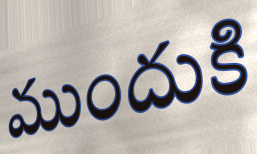
ముందుకి